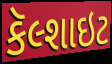
કૅલ્શાઇટ